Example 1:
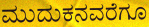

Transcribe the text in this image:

ಮುದುಕನವರೆಗೂ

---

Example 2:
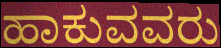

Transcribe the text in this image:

ಹಾಕುವವರು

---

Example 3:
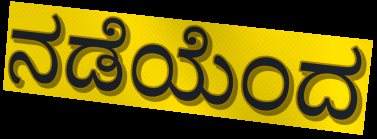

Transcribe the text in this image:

ನಡೆಯೆಂದ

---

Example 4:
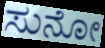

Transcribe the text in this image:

ಸುನೋ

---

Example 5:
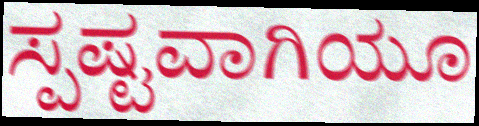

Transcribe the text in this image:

ಸ್ಪಷ್ಟವಾಗಿಯೂ